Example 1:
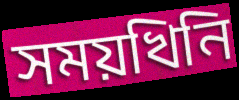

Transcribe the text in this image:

সময়খিনি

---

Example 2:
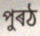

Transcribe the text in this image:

পুৰঠ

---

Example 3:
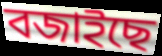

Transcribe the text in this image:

বজাইছে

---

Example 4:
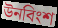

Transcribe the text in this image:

উনবিংশ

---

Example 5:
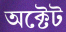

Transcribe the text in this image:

অক্টেট